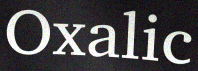
Oxalic